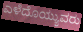
ಎಳೆದೊಯ್ಯುವರು